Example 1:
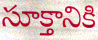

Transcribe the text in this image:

సూక్తానికి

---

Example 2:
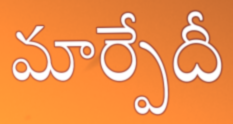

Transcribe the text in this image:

మార్పేదీ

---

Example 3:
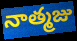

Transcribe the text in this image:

నాత్మజు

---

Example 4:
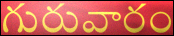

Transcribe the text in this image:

గురువారం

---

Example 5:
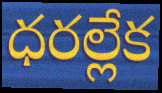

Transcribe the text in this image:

ధరల్లేక